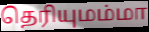
தெரியுமம்மா